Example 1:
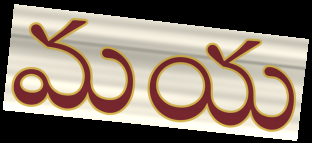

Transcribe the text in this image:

మయ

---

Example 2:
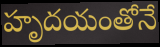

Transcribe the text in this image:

హృదయంతోనే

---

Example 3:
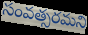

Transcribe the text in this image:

సంవత్సరమని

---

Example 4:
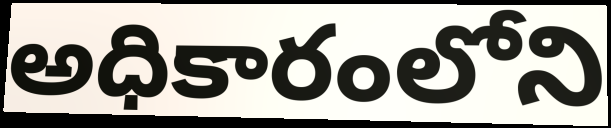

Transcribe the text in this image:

అధికారంలోని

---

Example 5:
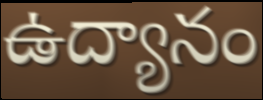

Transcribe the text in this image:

ఉద్యానం